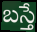
బస్తే